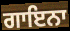
ਗਾਇਨਾ